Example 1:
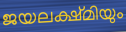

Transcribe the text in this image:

ജയലക്ഷ്മിയും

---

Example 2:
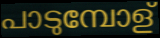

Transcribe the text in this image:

പാടുമ്പോള്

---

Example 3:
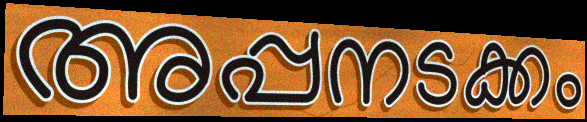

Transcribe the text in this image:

അപ്പനടക്കം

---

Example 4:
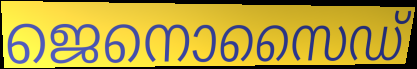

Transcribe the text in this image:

ജെനൊസൈഡ്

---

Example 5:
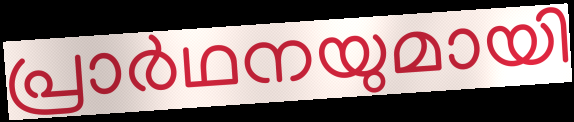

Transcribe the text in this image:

പ്രാർഥനയുമായി